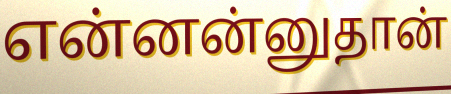
என்னன்னுதான்